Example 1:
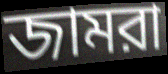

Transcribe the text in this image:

জামরা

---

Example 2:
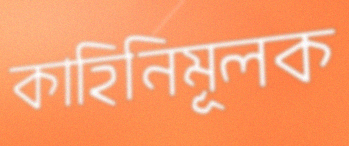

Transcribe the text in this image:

কাহিনিমূলক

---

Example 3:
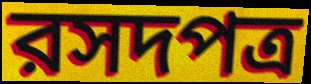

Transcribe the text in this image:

রসদপত্র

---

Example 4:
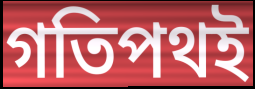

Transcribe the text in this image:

গতিপথই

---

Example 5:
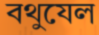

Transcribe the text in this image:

বথুযেল